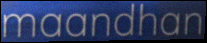
maandhan